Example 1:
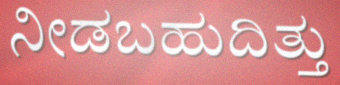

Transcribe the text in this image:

ನೀಡಬಹುದಿತ್ತು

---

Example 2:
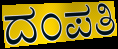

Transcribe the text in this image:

ದಂಪತಿ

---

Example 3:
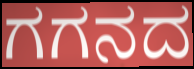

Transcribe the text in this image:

ಗಗನದ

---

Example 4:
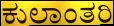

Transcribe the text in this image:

ಕುಲಾಂತರಿ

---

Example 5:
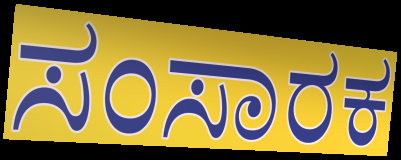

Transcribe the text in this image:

ಸಂಸಾರಕ